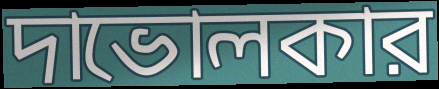
দাভোলকার